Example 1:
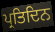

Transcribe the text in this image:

ਪ੍ਰਤਿਦਿਨ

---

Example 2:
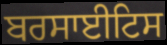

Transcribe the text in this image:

ਬਰਸਾਈਟਿਸ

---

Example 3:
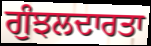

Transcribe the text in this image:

ਗੁੰਝਲਦਾਰਤਾ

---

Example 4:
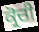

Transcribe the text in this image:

ਕ੍ਰੋਚੀ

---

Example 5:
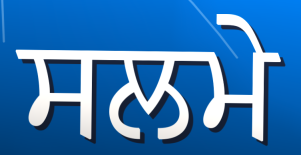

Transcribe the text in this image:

ਸਲਮੇ